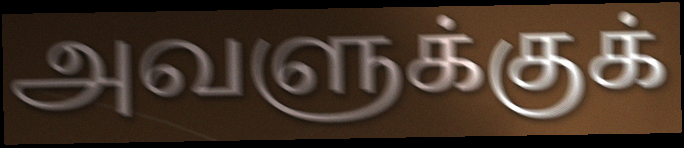
அவளுக்குக்